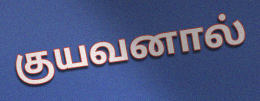
குயவனால்